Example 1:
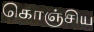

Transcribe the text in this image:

கொஞ்சிய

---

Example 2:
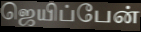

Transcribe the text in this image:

ஜெயிப்பேன்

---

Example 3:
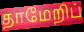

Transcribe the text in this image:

தாமேறிப்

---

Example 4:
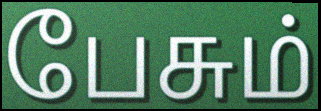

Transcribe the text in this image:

பேசும்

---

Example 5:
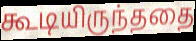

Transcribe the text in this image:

கூடியிருந்ததை